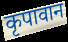
कृपावान